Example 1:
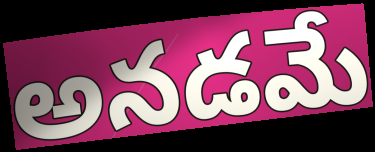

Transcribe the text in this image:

అనడమే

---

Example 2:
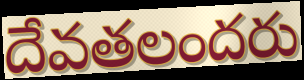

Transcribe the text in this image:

దేవతలందరు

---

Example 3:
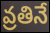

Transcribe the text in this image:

వ్రతినే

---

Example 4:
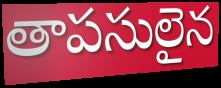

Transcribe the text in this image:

తాపసులైన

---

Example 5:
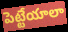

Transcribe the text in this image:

పెట్టేయాలా